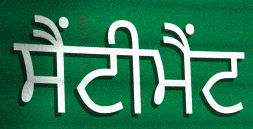
ਸੈਂਟੀਮੈਂਟ